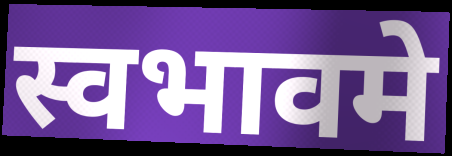
स्वभावमे